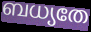
ബധ്യതേ